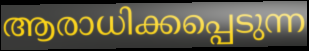
ആരാധിക്കപ്പെടുന്ന